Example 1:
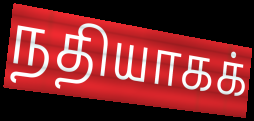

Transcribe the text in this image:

நதியாகக்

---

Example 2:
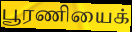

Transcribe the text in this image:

பூரணியைக்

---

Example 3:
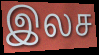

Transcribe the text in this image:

இலச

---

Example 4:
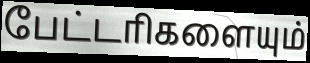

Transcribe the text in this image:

பேட்டரிகளையும்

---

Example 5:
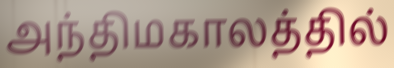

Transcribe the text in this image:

அந்திமகாலத்தில்